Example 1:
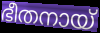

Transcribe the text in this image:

ഭീതനായ്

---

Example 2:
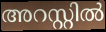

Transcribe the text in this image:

അറസ്റ്റിൽ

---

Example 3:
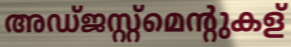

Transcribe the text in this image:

അഡ്ജസ്റ്റ്മെന്റുകള്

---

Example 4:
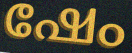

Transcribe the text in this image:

ഷേം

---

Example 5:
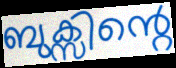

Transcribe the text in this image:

ബുക്സിന്റെ